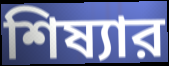
শিষ্যার